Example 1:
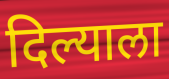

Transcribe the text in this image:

दिल्याला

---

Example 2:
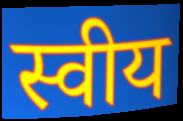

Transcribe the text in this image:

स्वीय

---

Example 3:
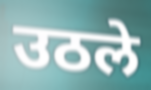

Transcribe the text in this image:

उठले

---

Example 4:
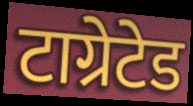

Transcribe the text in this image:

टाग्रेटेड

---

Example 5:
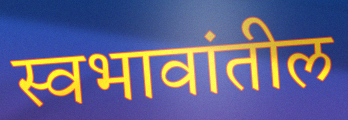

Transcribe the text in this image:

स्वभावांतील